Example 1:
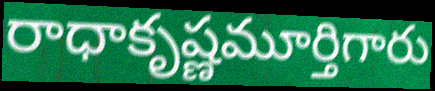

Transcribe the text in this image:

రాధాకృష్ణమూర్తిగారు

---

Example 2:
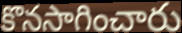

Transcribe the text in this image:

కొనసాగించారు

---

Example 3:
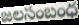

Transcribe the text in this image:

జలసంబంధ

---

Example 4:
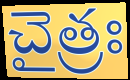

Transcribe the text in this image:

చైత్రః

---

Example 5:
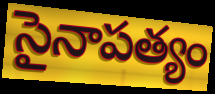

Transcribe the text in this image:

సైనాపత్యం